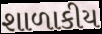
શાળાકીય